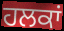
ਹਲਕਾਂ